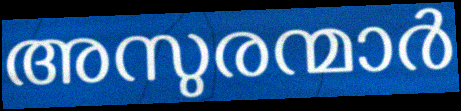
അസുരന്മാർ